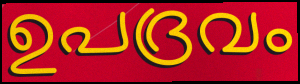
ഉപദ്രവം